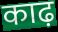
काढ़